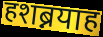
हशब्नयाह